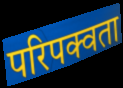
परिपक्‍वता